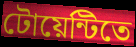
টোয়েন্টিতে